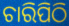
ଚାରିପିଠି